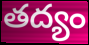
తద్యం